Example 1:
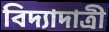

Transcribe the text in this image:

বিদ্যাদাত্রী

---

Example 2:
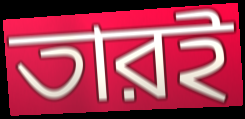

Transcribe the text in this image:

তারই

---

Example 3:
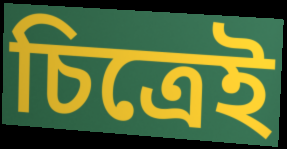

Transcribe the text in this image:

চিত্রেই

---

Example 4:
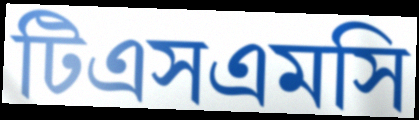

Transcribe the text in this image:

টিএসএমসি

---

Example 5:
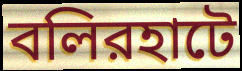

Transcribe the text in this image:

বলিরহাটে